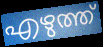
എഴുത്ത്